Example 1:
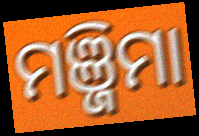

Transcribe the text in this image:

ମଞ୍ଜିମା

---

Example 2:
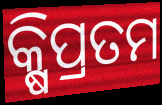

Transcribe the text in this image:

କ୍ଷିପ୍ରତମ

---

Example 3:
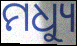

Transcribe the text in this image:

ମଧ୍ୟୁ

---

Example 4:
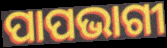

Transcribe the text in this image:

ପାପଭାଗୀ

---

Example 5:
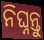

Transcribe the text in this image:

ନିଘ୍ନନ୍ତୁ